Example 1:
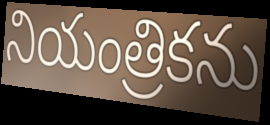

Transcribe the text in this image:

నియంత్రికను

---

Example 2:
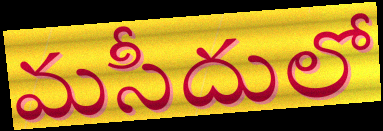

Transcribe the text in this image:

మసీదులో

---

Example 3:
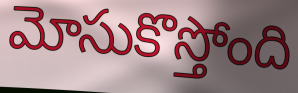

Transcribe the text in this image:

మోసుకొస్తోంది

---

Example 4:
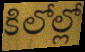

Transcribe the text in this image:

కిలోల్లో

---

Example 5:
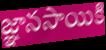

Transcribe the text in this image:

జ్ఞానసాయికి